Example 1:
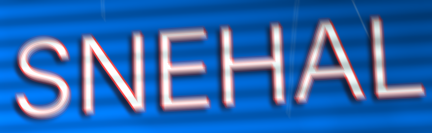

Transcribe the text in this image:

SNEHAL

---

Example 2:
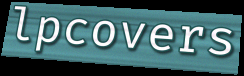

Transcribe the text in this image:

lpcovers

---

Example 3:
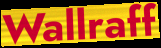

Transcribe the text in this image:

Wallraff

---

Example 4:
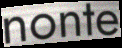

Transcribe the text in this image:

nonte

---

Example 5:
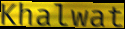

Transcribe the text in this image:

Khalwat